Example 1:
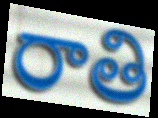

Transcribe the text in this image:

రాతి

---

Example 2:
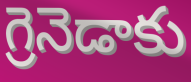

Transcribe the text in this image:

గ్రెనెడాకు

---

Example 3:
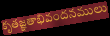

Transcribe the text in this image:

కృతజ్ఞతాభివందనములు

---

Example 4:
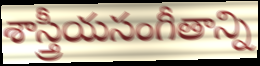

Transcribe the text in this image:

శాస్త్రీయసంగీతాన్ని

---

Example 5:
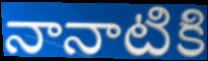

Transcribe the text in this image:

నానాటికి